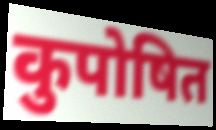
कुपोषित